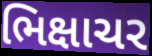
ભિક્ષાચર